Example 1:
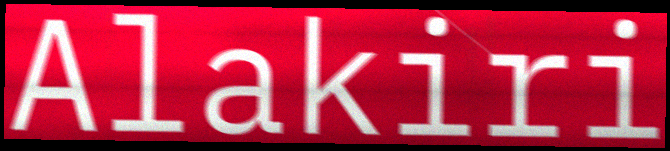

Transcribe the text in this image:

Alakiri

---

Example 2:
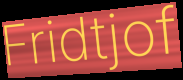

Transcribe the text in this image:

Fridtjof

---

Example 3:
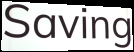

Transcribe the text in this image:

Saving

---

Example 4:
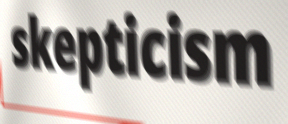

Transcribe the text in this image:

skepticism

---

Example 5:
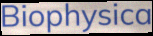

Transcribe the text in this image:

Biophysica